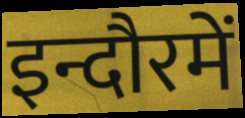
इन्दौरमें